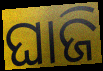
ଘାଜି